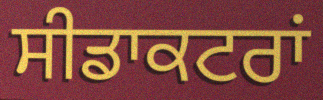
ਸੀਡਾਕਟਰਾਂ